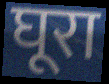
घूरा